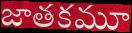
జాతకమూ